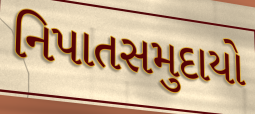
નિપાતસમુદાયો